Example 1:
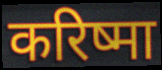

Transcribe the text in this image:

करिष्मा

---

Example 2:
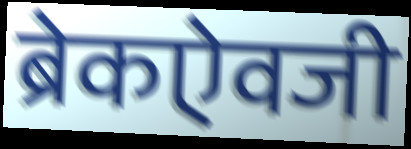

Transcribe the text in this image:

ब्रेकऐवजी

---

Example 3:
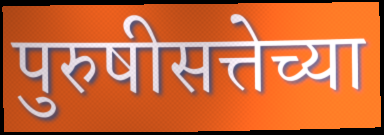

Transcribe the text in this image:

पुरुषीसत्तेच्या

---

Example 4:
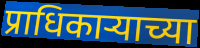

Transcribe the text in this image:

प्राधिकाऱ्याच्या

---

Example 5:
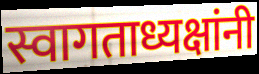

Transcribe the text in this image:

स्वागताध्यक्षांनी